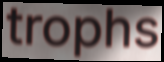
trophs